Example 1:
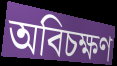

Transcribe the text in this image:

অবিচক্ষণ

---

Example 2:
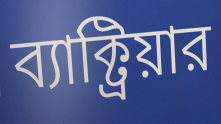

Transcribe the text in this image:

ব্যাক্ট্রিয়ার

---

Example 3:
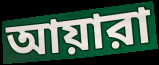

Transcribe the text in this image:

আয়ারা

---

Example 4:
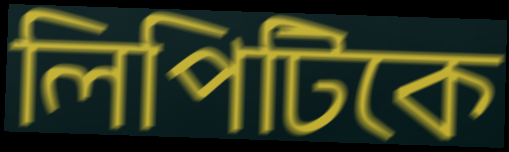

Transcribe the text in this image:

লিপিটিকে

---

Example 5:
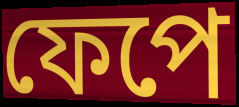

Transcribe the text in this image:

ফেপে